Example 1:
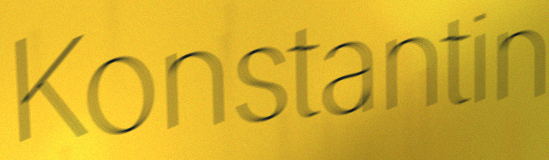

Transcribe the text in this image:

Konstantin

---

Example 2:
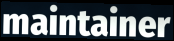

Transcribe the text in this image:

maintainer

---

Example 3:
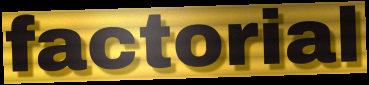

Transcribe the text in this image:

factorial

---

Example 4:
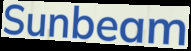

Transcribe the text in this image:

Sunbeam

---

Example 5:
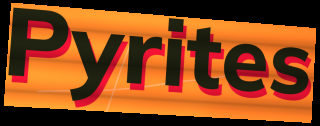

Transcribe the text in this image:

Pyrites